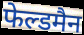
फेल्डमैन